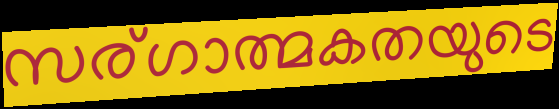
സര്ഗാത്മകതയുടെ